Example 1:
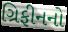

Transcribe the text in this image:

ગ્રિફીનનો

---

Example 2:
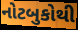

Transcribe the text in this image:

નોટબુકોથી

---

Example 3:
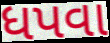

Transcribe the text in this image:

ધપવા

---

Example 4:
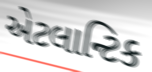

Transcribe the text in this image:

એટલાન્ટિક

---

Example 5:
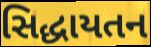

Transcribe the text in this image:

સિદ્ધાયતન